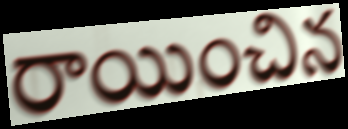
రాయించిన